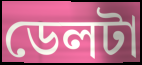
ডেলটা